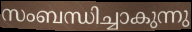
സംബന്ധിച്ചാകുന്നു